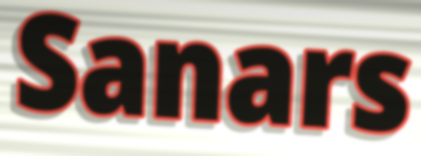
Sanars